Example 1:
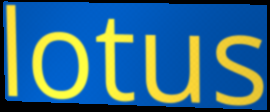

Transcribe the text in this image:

lotus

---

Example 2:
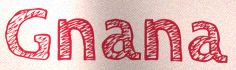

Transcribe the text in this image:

Gnana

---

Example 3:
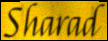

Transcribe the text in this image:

Sharad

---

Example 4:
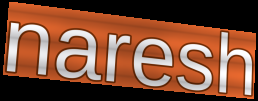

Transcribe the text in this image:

naresh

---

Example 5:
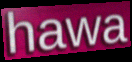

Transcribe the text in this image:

hawa